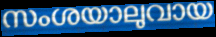
സംശയാലുവായ